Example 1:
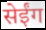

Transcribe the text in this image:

सेईंग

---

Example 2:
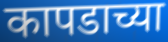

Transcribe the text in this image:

कापडाच्या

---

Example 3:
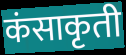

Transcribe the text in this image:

कंसाकृती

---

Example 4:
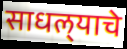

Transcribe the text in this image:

साधल्याचे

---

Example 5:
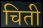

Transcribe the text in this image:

चिती